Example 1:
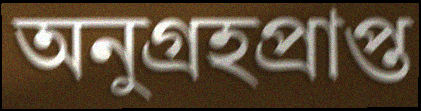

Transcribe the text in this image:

অনুগ্রহপ্রাপ্ত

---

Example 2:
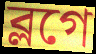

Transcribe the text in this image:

ব্লগে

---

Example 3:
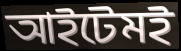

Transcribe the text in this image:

আইটেমই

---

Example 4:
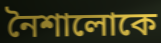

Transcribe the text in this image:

নৈশালোকে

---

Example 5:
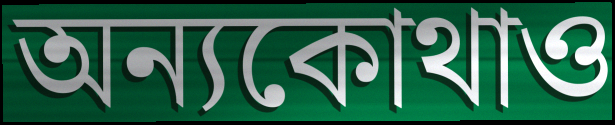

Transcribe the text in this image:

অন্যকোথাও